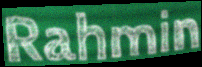
Rahmin